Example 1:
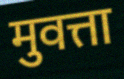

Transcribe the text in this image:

मुवत्ता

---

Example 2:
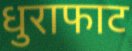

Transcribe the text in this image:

धुराफाट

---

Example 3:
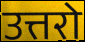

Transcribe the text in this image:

उत्तरो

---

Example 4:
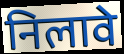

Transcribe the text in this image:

निलावे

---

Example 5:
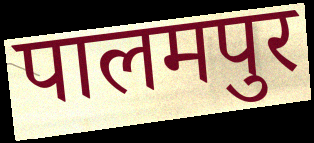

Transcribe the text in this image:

पालमपुर